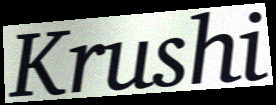
Krushi